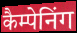
कैम्पेनिंग